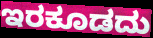
ಇರಕೂಡದು